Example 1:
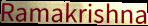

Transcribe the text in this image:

Ramakrishna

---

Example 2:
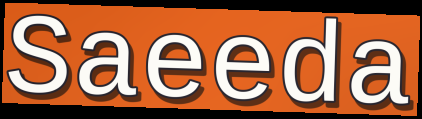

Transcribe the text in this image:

Saeeda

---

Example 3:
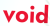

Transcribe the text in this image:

void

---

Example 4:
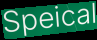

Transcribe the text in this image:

Speical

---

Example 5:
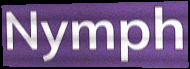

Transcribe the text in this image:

Nymph